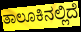
ತಾಲೂಕಿನಲ್ಲಿದೆ